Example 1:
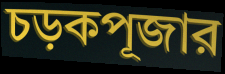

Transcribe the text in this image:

চড়কপূজার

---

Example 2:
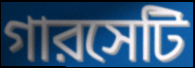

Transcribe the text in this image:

গারসেটি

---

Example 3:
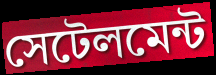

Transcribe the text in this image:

সেটেলমেন্ট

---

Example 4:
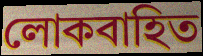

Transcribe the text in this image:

লোকবাহিত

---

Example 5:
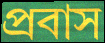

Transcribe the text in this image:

প্রবাস